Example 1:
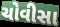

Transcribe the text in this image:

ચોવીસા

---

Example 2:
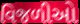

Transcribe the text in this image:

વિજળીઓ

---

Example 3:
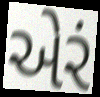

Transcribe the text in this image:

એરં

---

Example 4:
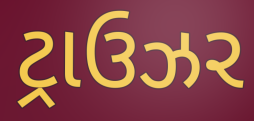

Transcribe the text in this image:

ટ્રાઉઝર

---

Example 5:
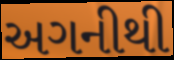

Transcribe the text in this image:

અગનીથી